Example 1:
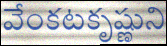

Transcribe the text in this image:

వేంకటకృష్ణుని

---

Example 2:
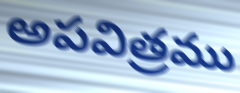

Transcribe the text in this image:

అపవిత్రము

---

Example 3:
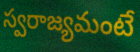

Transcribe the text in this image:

స్వరాజ్యమంటే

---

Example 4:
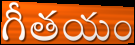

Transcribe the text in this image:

గీతయం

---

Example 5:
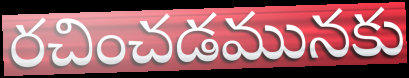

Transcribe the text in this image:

రచించడమునకు